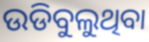
ଉଡିବୁଲୁଥିବା